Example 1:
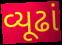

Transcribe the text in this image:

વ્યૂઢાં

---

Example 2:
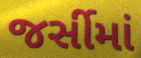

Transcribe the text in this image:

જર્સીમાં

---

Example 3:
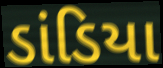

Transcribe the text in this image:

ડાંડિયા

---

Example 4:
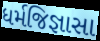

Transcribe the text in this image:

ધર્મજિજ્ઞાસા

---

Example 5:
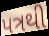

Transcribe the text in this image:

પત્રથી